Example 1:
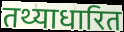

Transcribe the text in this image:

तथ्याधारित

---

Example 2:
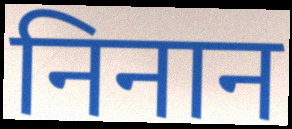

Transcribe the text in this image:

निनान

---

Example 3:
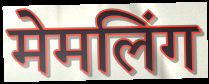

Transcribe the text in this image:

मेमलिंग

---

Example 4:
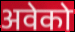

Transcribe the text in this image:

अवेको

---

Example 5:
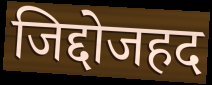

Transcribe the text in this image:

जिद्दोजहद